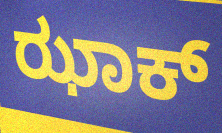
ಝಾಕ್